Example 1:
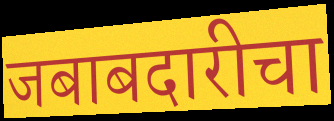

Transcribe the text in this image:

जबाबदारीचा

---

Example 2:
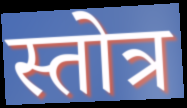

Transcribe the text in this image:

स्तोत्र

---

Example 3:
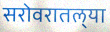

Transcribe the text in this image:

सरोवरातल्या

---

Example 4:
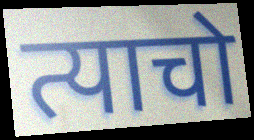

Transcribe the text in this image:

त्याचो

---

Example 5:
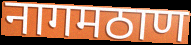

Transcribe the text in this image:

नागमठाण